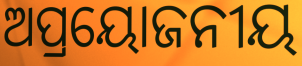
ଅପ୍ରୟୋଜନୀୟ